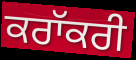
ਕਰਾੱਕਰੀ